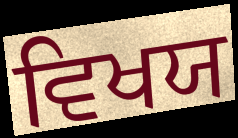
ਵਿਖਯ